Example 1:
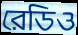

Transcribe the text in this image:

রেডিও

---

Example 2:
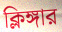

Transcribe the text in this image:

ক্লিঙ্গার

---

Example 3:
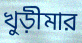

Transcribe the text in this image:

খুড়ীমার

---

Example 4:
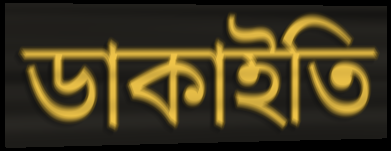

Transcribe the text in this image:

ডাকাইতি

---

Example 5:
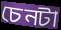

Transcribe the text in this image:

চেনটা